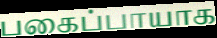
பகைப்பாயாக